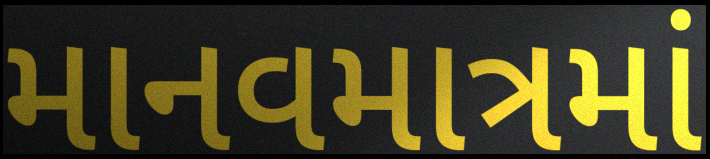
માનવમાત્રમાં